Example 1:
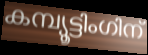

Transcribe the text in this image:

കമ്പ്യൂട്ടിംഗിന്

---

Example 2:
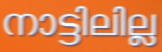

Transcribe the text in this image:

നാട്ടിലില്ല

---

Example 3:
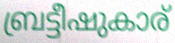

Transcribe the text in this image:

ബ്രട്ടീഷുകാര്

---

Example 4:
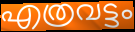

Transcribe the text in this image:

എത്രവട്ടം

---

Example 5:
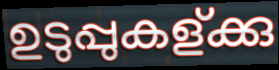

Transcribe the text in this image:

ഉടുപ്പുകള്ക്കു